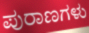
ಪುರಾಣಗಳು